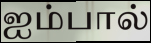
ஐம்பால்